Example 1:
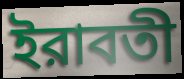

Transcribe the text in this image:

ইরাবতী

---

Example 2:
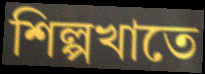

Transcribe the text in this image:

শিল্পখাতে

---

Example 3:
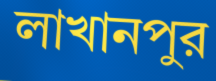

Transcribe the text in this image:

লাখানপুর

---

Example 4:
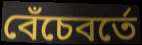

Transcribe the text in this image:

বেঁচেবর্তে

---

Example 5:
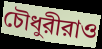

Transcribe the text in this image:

চৌধুরীরাও